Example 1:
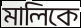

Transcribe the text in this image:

মালিকে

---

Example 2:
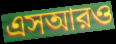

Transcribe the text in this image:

এসআরও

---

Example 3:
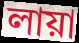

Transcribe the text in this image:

লায়া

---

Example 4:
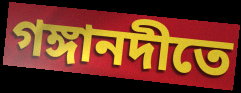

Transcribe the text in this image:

গঙ্গানদীতে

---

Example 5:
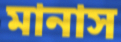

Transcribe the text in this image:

মানাস